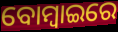
ବୋମ୍ୱାଇରେ